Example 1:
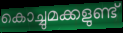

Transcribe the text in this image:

കൊച്ചുമക്കളുണ്ട്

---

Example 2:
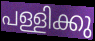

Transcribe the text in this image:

പള്ളിക്കു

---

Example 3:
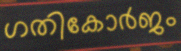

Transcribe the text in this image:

ഗതികോർജം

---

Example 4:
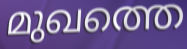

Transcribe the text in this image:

മുഖത്തെ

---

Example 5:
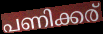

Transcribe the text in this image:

പണിക്കര്